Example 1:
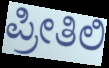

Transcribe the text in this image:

ಪ್ರೀತಿಲಿ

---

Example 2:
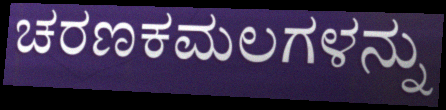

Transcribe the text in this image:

ಚರಣಕಮಲಗಳನ್ನು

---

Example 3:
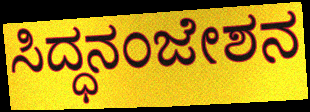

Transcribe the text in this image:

ಸಿದ್ಧನಂಜೇಶನ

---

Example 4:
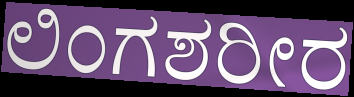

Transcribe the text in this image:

ಲಿಂಗಶರೀರ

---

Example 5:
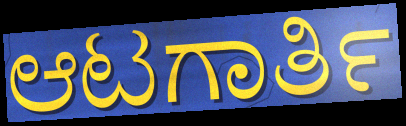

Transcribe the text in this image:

ಆಟಗಾರ್ತಿ